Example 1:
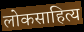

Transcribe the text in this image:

लोकसाहित्य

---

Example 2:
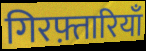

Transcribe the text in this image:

गिरफ़्तारियाँ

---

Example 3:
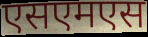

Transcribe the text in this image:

एसएमएस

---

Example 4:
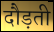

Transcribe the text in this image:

दौड़ती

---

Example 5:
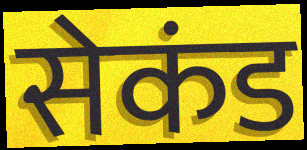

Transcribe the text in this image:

सेकंड